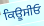
ਕਿਊਸੀਓ